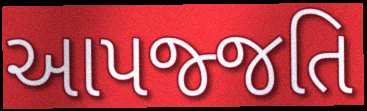
આપજ્જતિ